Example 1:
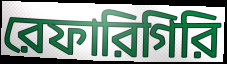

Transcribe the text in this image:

রেফারিগিরি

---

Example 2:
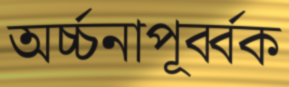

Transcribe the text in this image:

অর্চ্চনাপূর্ব্বক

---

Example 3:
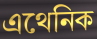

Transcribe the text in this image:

এথেনিক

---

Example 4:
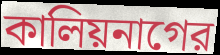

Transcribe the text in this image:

কালিয়নাগের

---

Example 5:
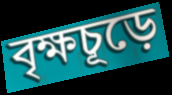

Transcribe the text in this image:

বৃক্ষচূড়ে